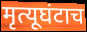
मृत्यूघंटाच